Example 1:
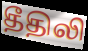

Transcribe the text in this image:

தீதிலி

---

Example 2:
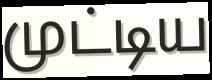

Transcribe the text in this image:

முட்டிய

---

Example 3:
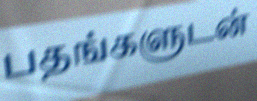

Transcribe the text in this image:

பதங்களுடன்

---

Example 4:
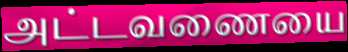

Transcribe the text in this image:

அட்டவணையை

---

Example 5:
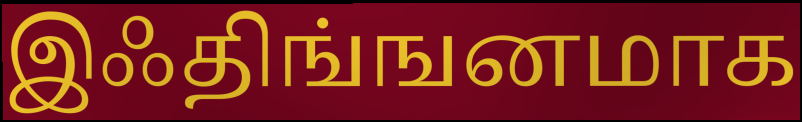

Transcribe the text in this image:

இஃதிங்ஙனமாக